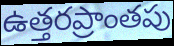
ఉత్తరప్రాంతపు